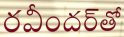
రవీందర్‌తో